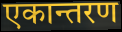
एकान्तरण